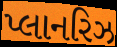
પ્લાનરિઝ